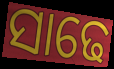
ସାଢେ